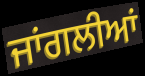
ਜਾਂਗਲੀਆਂ